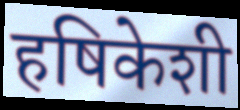
हषिकेशी